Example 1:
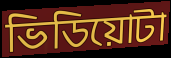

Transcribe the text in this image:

ভিডিয়োটা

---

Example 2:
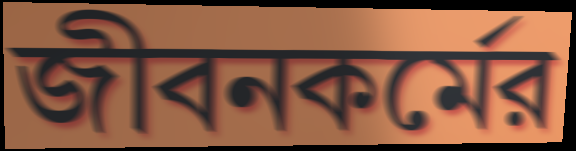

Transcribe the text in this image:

জীবনকর্মের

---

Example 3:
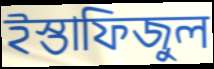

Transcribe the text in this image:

ইস্তাফিজুল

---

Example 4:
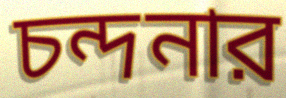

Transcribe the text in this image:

চন্দনার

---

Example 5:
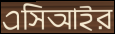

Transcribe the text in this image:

এসিআইর